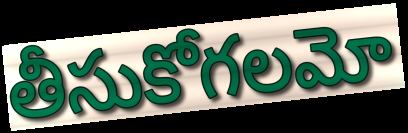
తీసుకోగలమో